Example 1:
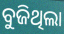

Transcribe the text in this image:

ବୁଜିଥିଲା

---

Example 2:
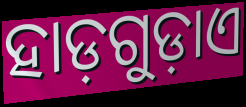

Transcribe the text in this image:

ହାଡ଼ଗୁଡ଼ାଏ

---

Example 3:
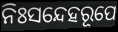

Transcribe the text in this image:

ନିଃସନ୍ଦେହରୂପେ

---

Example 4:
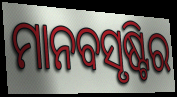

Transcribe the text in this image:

ମାନବସୃଷ୍ଟିର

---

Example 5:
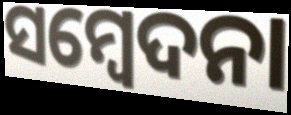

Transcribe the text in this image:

ସମ୍ବେଦନା